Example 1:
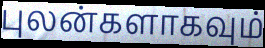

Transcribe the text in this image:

புலன்களாகவும்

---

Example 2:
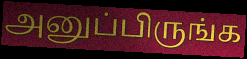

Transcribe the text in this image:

அனுப்பிருங்க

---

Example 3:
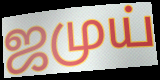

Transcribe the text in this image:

ஜமுய்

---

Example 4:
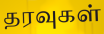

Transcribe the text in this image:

தரவுகள்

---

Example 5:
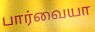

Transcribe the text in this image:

பார்வையா